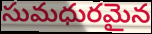
సుమధురమైన